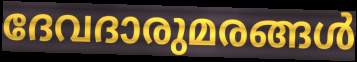
ദേവദാരുമരങ്ങൾ